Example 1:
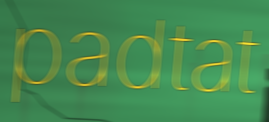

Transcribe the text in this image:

padtat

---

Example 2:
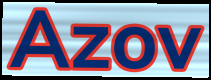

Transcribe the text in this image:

Azov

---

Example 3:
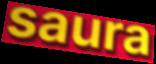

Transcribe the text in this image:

saura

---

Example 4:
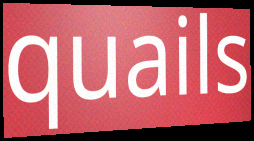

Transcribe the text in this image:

quails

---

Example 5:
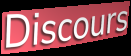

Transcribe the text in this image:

Discours